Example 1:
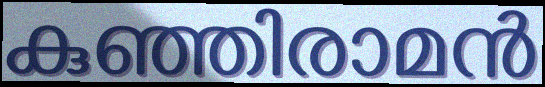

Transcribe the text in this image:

കുഞ്ഞിരാമൻ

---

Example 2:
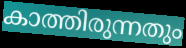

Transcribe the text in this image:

കാത്തിരുന്നതും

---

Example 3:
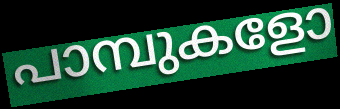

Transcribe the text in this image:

പാമ്പുകളോ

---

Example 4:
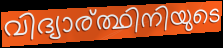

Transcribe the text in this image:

വിദ്യാര്ത്ഥിനിയുടെ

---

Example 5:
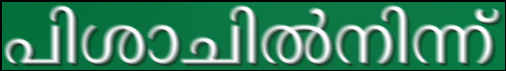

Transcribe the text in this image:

പിശാചിൽനിന്ന്